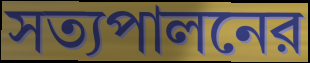
সত্যপালনের